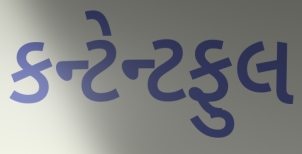
કન્ટેન્ટફુલ